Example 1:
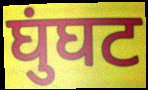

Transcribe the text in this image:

घुंघट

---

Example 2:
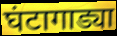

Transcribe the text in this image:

घंटागाड्या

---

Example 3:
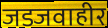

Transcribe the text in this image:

जडजवाहीर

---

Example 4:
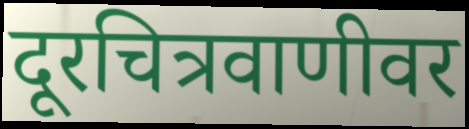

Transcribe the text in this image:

दूरचित्रवाणीवर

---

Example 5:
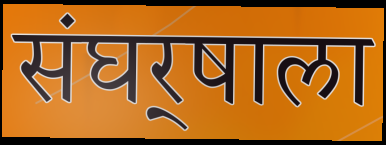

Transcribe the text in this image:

संघर्षाला